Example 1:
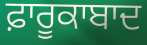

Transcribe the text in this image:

ਫ਼ਾਰੂਕਾਬਾਦ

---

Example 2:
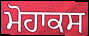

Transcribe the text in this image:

ਮੋਹਾਕਸ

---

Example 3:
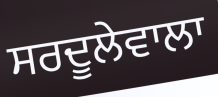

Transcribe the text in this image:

ਸਰਦੂਲੇਵਾਲਾ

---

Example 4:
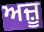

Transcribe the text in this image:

ਅਜ਼ੂ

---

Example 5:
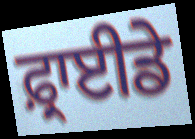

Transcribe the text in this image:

ਫ਼੍ਰਾਈਡੇ